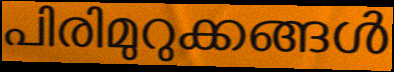
പിരിമുറുക്കങ്ങൾ